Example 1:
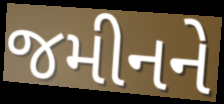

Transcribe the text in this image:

જમીનને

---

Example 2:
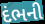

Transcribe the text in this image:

દંભની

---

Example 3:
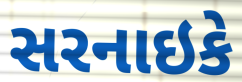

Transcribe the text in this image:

સરનાઇકે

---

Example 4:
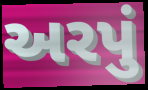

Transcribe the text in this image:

અરપું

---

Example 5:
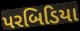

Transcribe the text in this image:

પરબિડિયા